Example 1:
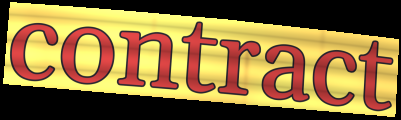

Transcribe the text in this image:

contract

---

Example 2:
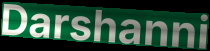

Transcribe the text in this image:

Darshanni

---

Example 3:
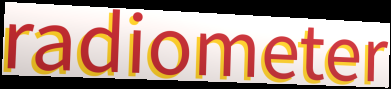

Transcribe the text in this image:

radiometer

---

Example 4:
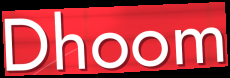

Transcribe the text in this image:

Dhoom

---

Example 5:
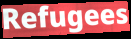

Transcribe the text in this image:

Refugees